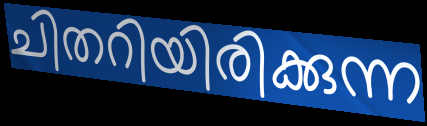
ചിതറിയിരിക്കുന്ന